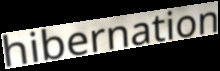
hibernation